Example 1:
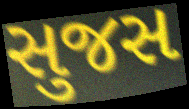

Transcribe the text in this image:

સુજસ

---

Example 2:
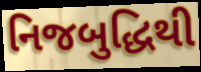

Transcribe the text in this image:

નિજબુદ્ધિથી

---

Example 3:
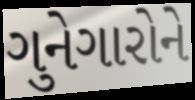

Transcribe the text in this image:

ગુનેગારોને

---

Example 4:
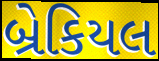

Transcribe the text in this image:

બ્રેકિયલ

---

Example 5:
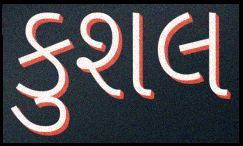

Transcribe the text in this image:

કુશલ